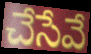
చేసేవే